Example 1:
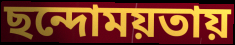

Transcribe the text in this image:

ছন্দোময়তায়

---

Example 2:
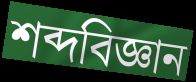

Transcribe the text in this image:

শব্দবিজ্ঞান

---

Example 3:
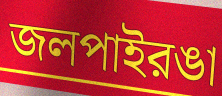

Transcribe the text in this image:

জলপাইরঙা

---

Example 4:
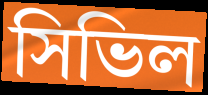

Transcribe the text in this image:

সিভিল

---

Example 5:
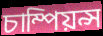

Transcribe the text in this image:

চাম্পিয়ন্স